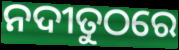
ନଦୀତୁଠରେ